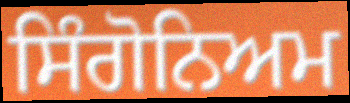
ਸਿੰਗੋਨਿਅਮ